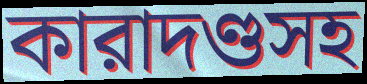
কারাদণ্ডসহ